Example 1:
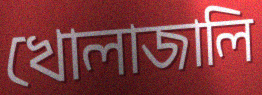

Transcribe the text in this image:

খোলাজালি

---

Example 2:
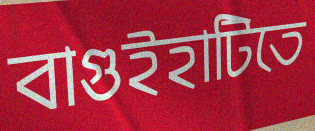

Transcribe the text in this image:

বাগুইহাটিতে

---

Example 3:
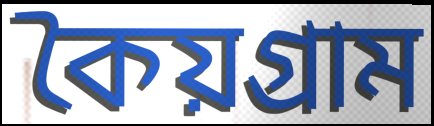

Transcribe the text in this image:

কৈয়গ্রাম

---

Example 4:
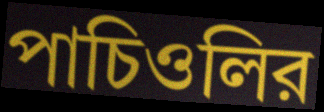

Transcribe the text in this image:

পাচিওলির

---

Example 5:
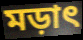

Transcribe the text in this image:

মড়াৎ